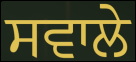
ਸਵਾਲੇ